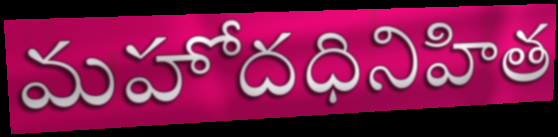
మహోదధినిహిత